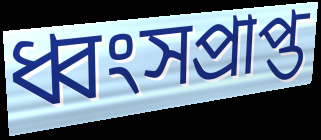
ধ্বংসপ্রাপ্ত